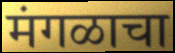
मंगळाचा